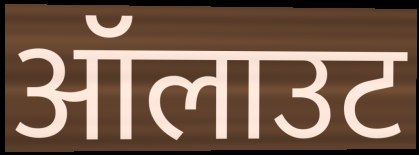
ऑलाउट